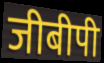
जीबीपी